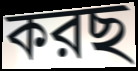
করছ